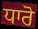
ਧਾਰੋ